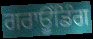
ਗਰਾਊਂਡਿੰਗ